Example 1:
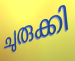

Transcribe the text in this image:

ചുരുക്കി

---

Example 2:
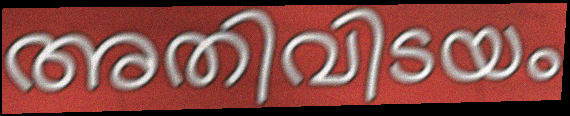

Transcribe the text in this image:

അതിവിടയം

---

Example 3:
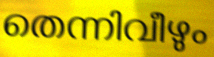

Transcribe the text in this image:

തെന്നിവീഴും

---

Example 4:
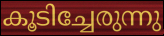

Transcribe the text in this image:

കൂടിച്ചേരുന്നു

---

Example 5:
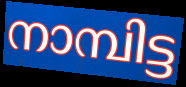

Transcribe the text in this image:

നാമ്പിട്ട